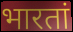
भारतां